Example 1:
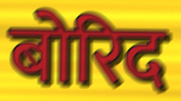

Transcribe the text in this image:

बोरिद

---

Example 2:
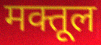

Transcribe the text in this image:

मक्तूल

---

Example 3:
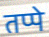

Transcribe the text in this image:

तप्पे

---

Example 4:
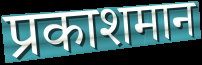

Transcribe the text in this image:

प्रकाशमान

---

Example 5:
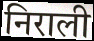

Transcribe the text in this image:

निराली